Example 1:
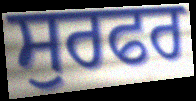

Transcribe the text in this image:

ਸੁਰਫਰ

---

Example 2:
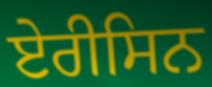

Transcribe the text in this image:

ਏਰੀਸਿਨ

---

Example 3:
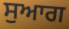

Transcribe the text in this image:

ਸੁਆਗ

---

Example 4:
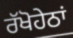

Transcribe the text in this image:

ਰੱਖੋਹੇਠਾਂ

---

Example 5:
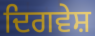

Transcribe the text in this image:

ਦਿਗਵੇਸ਼